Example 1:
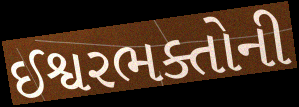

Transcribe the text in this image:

ઈશ્વરભક્તોની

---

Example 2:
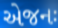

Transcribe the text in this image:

એજનઃ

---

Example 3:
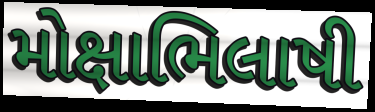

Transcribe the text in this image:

મોક્ષાભિલાષી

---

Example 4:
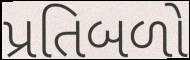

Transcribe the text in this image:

પ્રતિબળો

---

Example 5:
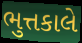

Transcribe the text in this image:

ભુત્તકાલે